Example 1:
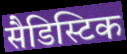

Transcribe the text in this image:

सैडिस्टिक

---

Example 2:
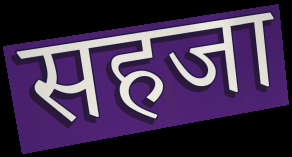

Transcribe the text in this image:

सहजा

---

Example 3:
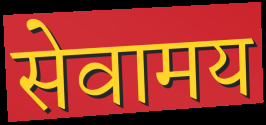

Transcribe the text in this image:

सेवामय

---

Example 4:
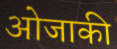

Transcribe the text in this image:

ओजाकी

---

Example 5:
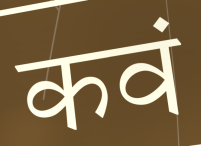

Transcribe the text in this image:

कवं